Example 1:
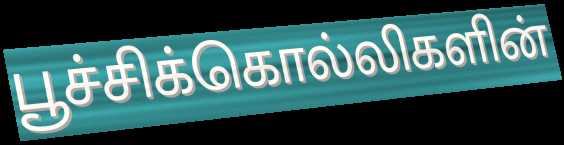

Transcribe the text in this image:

பூச்சிக்கொல்லிகளின்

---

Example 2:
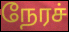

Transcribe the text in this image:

நேரச்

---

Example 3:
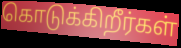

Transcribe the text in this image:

கொடுக்கிறீர்கள்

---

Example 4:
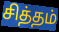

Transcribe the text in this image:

சித்தம்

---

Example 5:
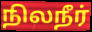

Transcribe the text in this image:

நிலநீர்